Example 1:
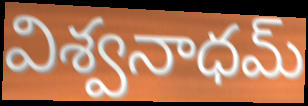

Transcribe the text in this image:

విశ్వనాధమ్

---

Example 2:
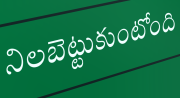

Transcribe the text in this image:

నిలబెట్టుకుంటోంది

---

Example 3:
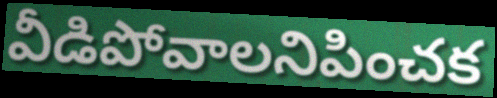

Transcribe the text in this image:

వీడిపోవాలనిపించక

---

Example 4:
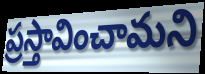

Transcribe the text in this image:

ప్రస్తావించామని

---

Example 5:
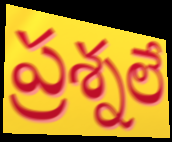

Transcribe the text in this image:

ప్రశ్నలే